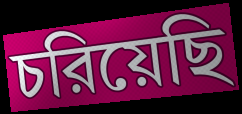
চরিয়েছি